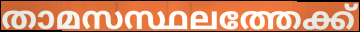
താമസസ്ഥലത്തേക്ക്